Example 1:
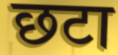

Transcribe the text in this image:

छटा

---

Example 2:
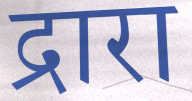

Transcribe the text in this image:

द्रारा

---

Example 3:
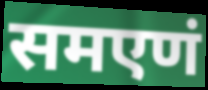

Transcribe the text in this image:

समएणं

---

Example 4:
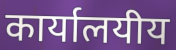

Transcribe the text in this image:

कार्यालयीय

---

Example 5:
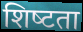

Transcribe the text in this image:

शिष्‍टता